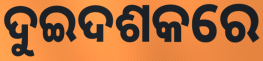
ଦୁଇଦଶକରେ